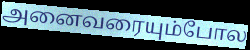
அனைவரையும்போல